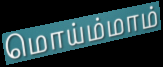
மொய்ம்மாம்